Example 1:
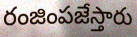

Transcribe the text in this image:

రంజింపజేస్తారు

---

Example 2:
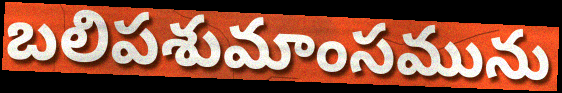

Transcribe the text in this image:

బలిపశుమాంసమును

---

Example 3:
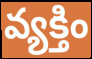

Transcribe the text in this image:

వ్యక్తిం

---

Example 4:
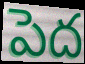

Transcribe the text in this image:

పెద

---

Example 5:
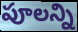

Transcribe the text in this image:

పూలన్ని